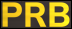
PRB